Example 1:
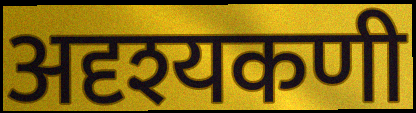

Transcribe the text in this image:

अदृश्यकणी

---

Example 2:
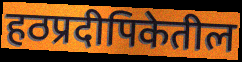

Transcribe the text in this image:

हठप्रदीपिकेतील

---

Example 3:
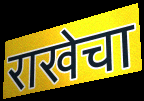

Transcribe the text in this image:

राखेचा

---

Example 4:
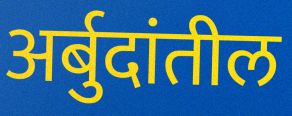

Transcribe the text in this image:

अर्बुदांतील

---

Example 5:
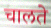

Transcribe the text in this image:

चालते